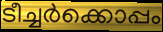
ടീച്ചർക്കൊപ്പം